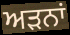
ਅੜਨਾਂ